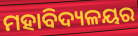
ମହାବିଦ୍ୟଳୟର